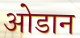
ओडान